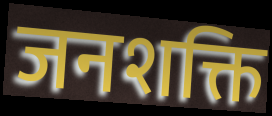
जनशक्ति